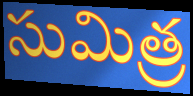
సుమిత్ర